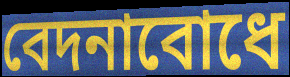
বেদনাবোধে